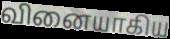
வினையாகிய